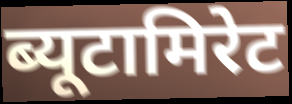
ब्यूटामिरेट